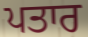
ਪਤਾਰ